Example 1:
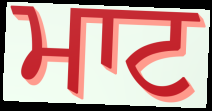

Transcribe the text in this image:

ਮਾਟ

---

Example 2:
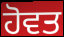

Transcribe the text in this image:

ਹੋਵਤ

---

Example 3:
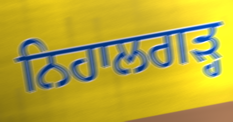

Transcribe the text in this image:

ਨਿਹਾਲਗੜ੍ਹ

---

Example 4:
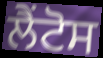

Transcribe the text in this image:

ਲੈਂਟੋਸ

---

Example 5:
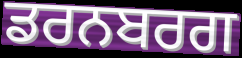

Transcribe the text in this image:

ਡਰਨਬਰਗ